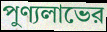
পুণ্যলাভের